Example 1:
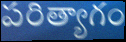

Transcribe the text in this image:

పరిత్యాగం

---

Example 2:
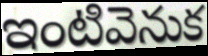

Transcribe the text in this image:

ఇంటివెనుక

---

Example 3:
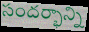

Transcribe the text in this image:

సందర్భాన్ని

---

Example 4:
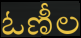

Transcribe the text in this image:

ఓణీల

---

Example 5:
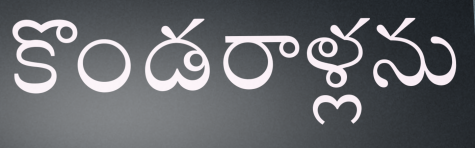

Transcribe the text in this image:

కొండరాళ్లను